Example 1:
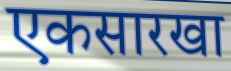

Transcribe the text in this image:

एकसारखा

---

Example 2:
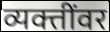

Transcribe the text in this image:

व्यक्तींवर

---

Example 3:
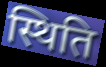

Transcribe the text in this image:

स्थिति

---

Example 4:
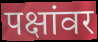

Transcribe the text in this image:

पक्षांवर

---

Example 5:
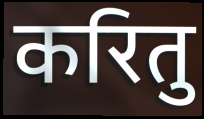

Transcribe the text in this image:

करितु